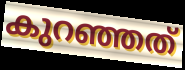
കുറഞ്ഞത്